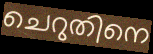
ചെറുതിനെ